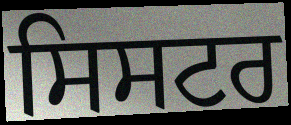
ਸਿਸਟਰ